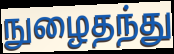
நுழைதந்து